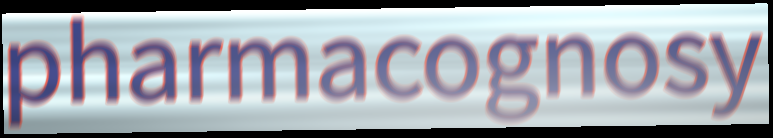
pharmacognosy